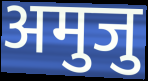
अमुजु